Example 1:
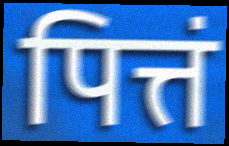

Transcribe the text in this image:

पित्तं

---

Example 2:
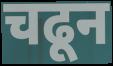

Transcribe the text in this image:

चढून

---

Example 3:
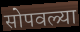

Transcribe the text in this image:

सोपवल्या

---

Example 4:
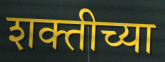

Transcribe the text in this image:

शक्तीच्या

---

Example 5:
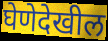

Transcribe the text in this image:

घेणेदेखील